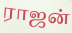
ராஜன்